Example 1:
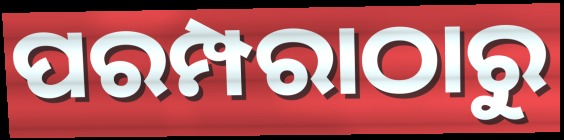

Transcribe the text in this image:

ପରମ୍ପରାଠାରୁ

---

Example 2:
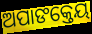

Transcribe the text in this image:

ଅପାଙକ୍ତେୟ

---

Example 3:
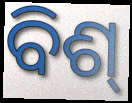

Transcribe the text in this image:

ବିଶ୍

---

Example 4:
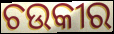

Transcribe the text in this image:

ଚଉକୀର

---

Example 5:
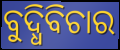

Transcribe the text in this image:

ବୁଦ୍ଧିବିଚାର